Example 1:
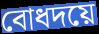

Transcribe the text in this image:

বোধদয়ে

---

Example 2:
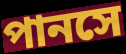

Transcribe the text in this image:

পানসে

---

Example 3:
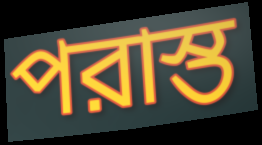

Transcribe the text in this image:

পরাস্ত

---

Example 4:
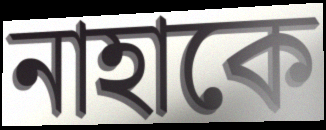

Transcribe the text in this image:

নাহাকে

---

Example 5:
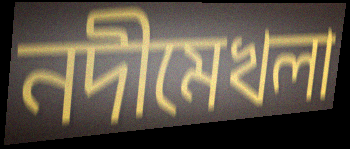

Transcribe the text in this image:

নদীমেখলা